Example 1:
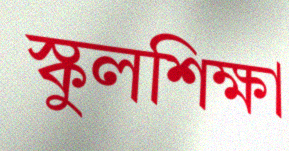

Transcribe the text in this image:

স্কুলশিক্ষা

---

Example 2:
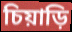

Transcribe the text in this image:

চিয়াড়ি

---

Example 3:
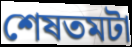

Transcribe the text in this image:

শেষতমটা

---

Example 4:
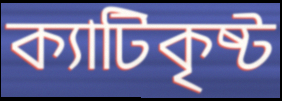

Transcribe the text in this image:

ক্যাটিকৃষ্ট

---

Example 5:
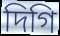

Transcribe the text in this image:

দিগি